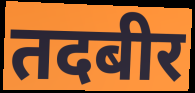
तदबीर